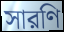
সারণি